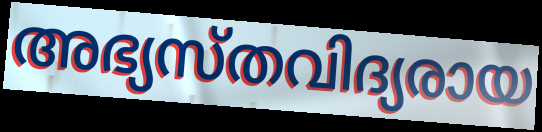
അഭ്യസ്തവിദ്യരായ